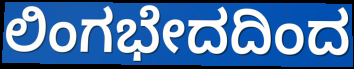
ಲಿಂಗಭೇದದಿಂದ